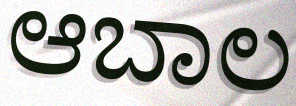
ಆಬಾಲ